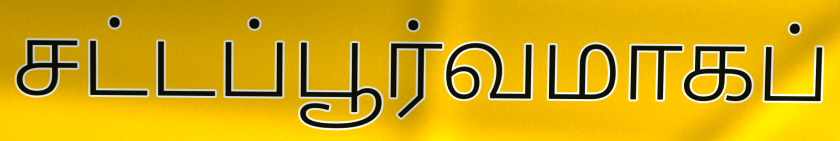
சட்டப்பூர்வமாகப்